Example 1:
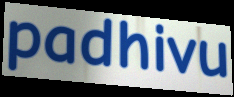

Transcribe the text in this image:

padhivu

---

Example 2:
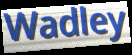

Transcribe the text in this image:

Wadley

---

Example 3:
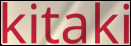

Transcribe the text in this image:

kitaki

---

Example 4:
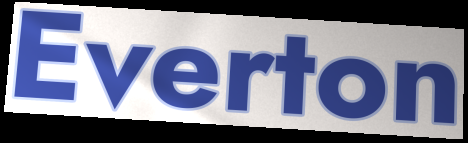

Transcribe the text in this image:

Everton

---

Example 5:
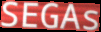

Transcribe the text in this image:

SEGAs